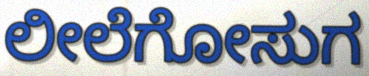
ಲೀಲೆಗೋಸುಗ